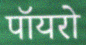
पॉयरो